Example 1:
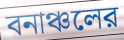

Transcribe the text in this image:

বনাঞ্চলের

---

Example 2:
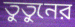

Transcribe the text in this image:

তুতুনের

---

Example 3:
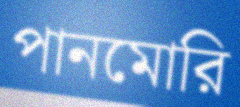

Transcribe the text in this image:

পানমোরি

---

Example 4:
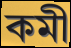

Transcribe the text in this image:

কমী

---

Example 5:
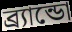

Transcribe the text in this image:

ব্র্যান্ডো